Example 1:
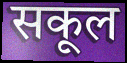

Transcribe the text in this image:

सकूल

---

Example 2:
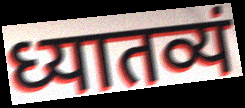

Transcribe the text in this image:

ध्यातव्यं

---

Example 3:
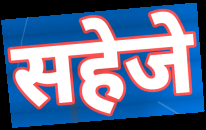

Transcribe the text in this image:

सहेजे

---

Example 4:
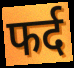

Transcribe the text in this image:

फर्द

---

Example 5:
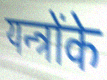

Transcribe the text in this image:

यन्त्रोंके